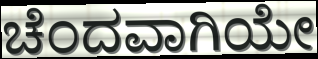
ಚೆಂದವಾಗಿಯೇ